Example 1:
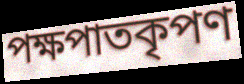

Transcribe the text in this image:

পক্ষপাতকৃপণ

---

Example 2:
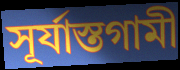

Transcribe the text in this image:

সূর্যাস্তগামী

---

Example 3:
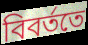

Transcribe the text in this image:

বিবর্ততে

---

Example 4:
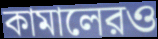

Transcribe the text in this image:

কামালেরও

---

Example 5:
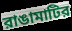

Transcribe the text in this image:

রাঙামাটির